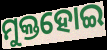
ମୁକ୍ତହୋଇ